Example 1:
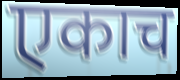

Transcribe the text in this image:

एकाच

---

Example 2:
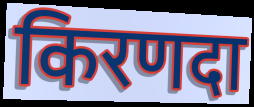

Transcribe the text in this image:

किरणदा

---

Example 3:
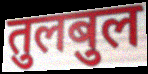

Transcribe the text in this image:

तुलबुल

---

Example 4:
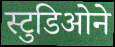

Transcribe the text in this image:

स्टुडिओने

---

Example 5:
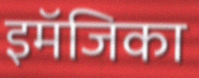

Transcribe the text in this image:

इमॅजिका